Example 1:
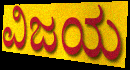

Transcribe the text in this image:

ವಿಜಯ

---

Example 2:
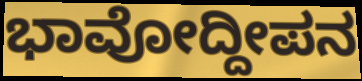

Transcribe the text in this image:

ಭಾವೋದ್ದೀಪನ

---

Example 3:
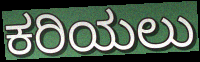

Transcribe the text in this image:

ಕರಿಯಲು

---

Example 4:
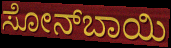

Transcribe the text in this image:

ಸೋನ್‍ಬಾಯಿ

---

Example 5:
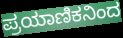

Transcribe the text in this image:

ಪ್ರಯಾಣಿಕನಿಂದ